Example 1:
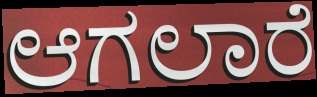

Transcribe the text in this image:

ಆಗಲಾರೆ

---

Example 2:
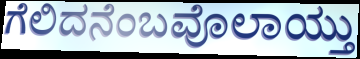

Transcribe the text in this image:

ಗೆಲಿದನೆಂಬವೊಲಾಯ್ತು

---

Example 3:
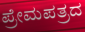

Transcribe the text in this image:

ಪ್ರೇಮಪತ್ರದ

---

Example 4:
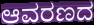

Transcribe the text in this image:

ಆವರಣದ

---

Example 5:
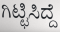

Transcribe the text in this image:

ಗಿಟ್ಟಿಸಿದ್ದೆ